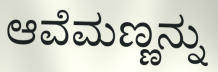
ಆವೆಮಣ್ಣನ್ನು